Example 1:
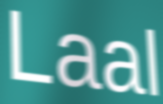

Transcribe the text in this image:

Laal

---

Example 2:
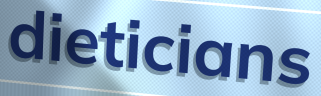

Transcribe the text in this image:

dieticians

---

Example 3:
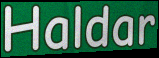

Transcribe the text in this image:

Haldar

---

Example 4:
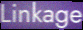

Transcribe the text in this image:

Linkage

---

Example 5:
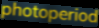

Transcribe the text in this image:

photoperiod